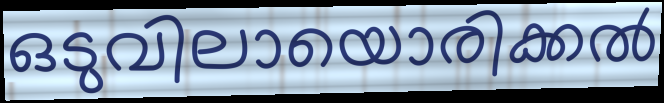
ഒടുവിലായൊരിക്കൽ